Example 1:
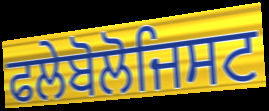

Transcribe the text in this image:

ਫਲੇਬੋਲੋਜਿਸਟ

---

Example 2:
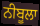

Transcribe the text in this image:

ਨੀਬੂਲਾ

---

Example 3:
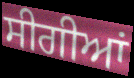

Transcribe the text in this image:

ਸੀਗੀਆਂ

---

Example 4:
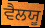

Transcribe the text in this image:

ਵੈਲਯੂ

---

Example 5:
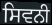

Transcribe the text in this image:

ਸਿਵਨੀ